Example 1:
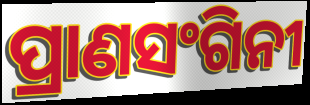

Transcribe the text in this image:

ପ୍ରାଣସଂଗିନୀ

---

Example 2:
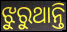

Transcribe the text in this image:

ଝୁରୁଥାନ୍ତି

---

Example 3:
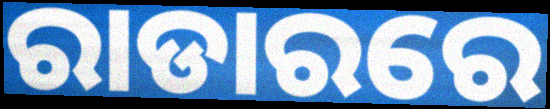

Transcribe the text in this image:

ରାଡାରରେ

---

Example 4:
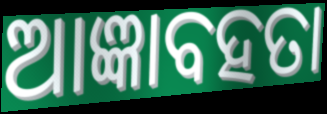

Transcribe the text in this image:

ଆଜ୍ଞାବହତା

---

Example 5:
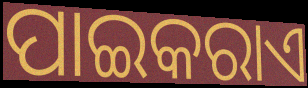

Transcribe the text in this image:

ପାଇକରାଏ